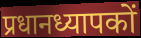
प्रधानध्यापकों